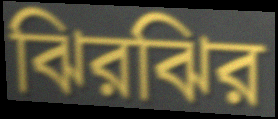
ঝিরঝির